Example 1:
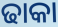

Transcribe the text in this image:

ଢାକା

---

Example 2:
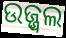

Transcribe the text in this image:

ଉଜ୍ଜ୍ୱଲ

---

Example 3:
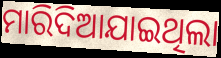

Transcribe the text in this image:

ମାରିଦିଆଯାଇଥିଲା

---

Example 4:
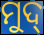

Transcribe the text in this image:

ମୁଦ୍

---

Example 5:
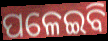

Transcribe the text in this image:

ପଳେଇବି